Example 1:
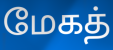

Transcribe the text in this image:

மேகத்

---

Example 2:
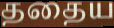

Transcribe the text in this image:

ததைய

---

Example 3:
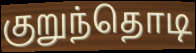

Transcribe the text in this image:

குறுந்தொடி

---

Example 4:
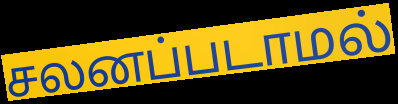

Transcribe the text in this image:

சலனப்படாமல்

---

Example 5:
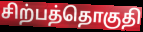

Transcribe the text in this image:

சிற்பத்தொகுதி